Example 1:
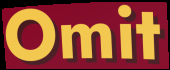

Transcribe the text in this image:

Omit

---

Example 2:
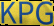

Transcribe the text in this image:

KPG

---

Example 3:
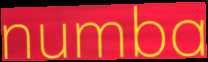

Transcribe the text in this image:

numba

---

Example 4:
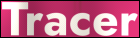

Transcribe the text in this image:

Tracer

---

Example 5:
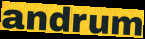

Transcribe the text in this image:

andrum